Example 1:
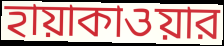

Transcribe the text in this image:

হায়াকাওয়ার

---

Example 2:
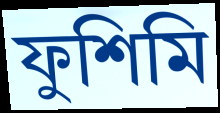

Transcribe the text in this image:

ফুশিমি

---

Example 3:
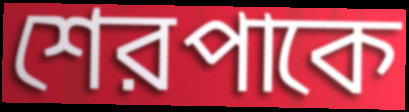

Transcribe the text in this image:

শেরপাকে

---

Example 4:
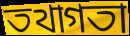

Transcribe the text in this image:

তথাগতা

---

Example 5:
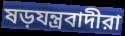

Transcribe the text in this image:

ষড়যন্ত্রবাদীরা